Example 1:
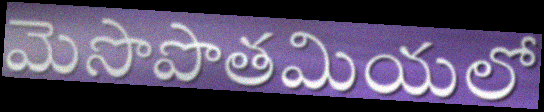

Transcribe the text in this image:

మెసొపొతమియలో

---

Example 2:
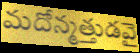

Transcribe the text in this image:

మదోన్మత్తుడవై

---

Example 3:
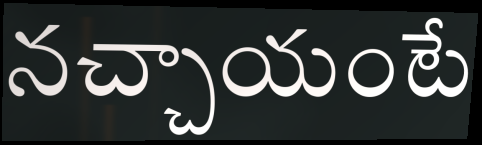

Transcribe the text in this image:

నచ్చాయంటే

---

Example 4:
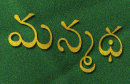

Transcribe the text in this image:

మన్మథ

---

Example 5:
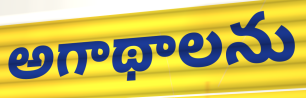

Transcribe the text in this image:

అగాథాలను